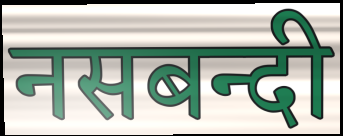
नसबन्दी